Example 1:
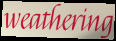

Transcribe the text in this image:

weathering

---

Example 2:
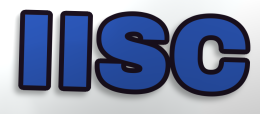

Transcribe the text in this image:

IISC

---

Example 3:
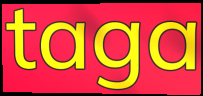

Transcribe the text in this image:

taga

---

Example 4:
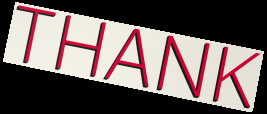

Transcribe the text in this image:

THANK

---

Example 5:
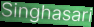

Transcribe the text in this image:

Singhasari